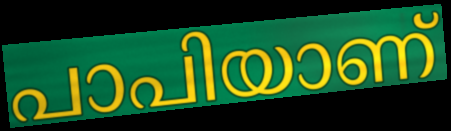
പാപിയാണ്